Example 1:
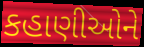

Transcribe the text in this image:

કહાણીઓને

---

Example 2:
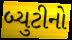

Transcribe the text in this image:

બ્યુટીનો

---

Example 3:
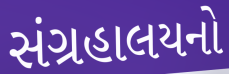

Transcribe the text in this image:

સંગ્રહાલયનો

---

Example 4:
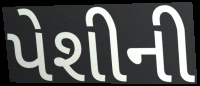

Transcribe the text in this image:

પેશીની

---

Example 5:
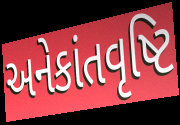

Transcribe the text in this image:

અનેકાંતવૃષ્ટિ